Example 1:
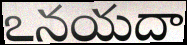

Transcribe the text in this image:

ఽనయదా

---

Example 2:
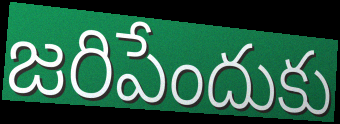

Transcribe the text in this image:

జరిపేందుకు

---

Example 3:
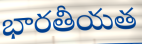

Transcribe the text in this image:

భారతీయత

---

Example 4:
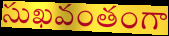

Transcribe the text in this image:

సుఖవంతంగా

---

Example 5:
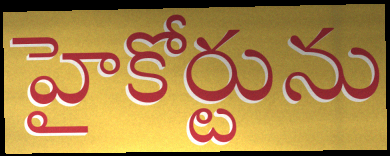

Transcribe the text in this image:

హైకోర్టును